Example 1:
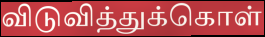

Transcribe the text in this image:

விடுவித்துக்கொள்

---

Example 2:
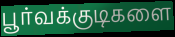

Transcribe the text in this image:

பூர்வக்குடிகளை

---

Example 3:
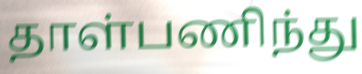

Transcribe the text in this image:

தாள்பணிந்து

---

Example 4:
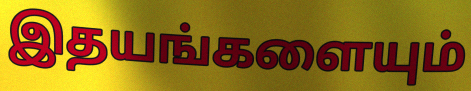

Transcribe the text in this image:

இதயங்களையும்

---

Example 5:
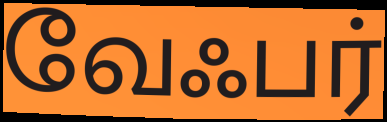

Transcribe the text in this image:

வேஃபர்